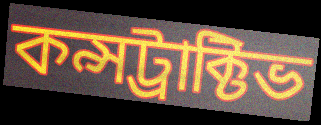
কন্সট্রাক্টিভ